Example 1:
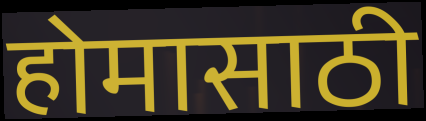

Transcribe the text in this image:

होमासाठी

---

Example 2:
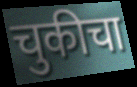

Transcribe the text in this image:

चुकीचा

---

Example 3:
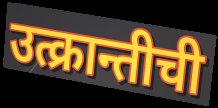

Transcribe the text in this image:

उत्क्रान्तीची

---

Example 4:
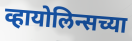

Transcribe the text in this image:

व्हायोलिन्सच्या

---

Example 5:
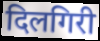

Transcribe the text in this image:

दिलगिरी